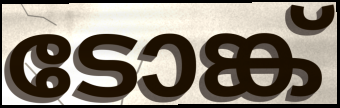
ടോങ്ക്